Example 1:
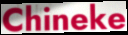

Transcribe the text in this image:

Chineke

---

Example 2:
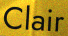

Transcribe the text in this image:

Clair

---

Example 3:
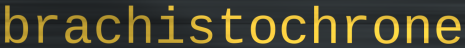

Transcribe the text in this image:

brachistochrone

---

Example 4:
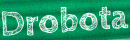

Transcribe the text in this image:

Drobota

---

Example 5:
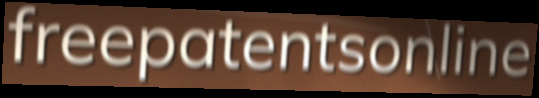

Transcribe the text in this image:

freepatentsonline